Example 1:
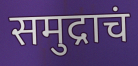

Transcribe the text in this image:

समुद्राचं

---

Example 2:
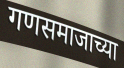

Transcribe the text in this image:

गणसमाजाच्या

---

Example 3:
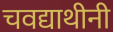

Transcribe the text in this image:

चवद्याथीनी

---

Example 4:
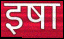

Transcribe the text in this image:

इषा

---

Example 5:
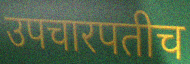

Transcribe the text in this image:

उपचारपतीच